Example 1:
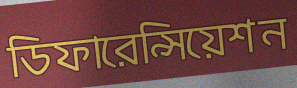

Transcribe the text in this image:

ডিফারেন্সিয়েশন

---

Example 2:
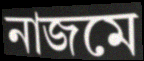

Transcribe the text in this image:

নাজমে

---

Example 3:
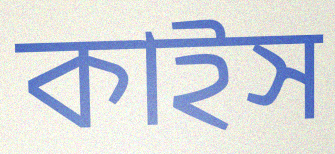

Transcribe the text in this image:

কাইস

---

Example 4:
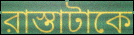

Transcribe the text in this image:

রাস্তাটাকে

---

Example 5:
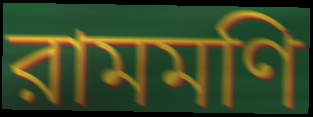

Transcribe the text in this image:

রামমণি